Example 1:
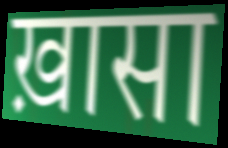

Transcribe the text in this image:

ख़ासा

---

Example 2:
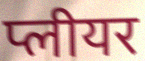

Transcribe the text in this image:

प्लीयर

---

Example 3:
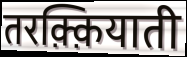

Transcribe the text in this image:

तरक़्क़ियाती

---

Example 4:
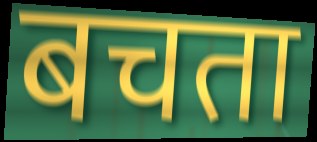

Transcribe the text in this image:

बचता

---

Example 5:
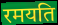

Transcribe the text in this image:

रमयति